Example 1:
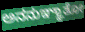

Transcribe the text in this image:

ಅನನುಞ್ಞಾತೋ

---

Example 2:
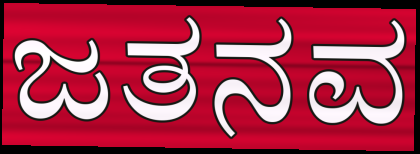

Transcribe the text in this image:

ಜತನವ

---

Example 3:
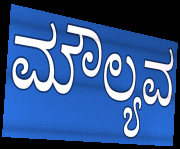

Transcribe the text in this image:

ಮೌಲ್ಯವ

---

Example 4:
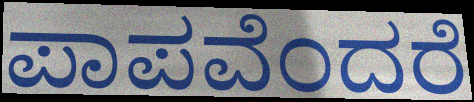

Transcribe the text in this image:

ಪಾಪವೆಂದರೆ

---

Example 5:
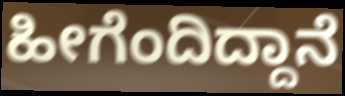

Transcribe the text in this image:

ಹೀಗೆಂದಿದ್ದಾನೆ